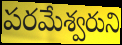
పరమేశ్వరుని